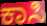
ಕಾಸಿ